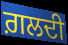
ਗ਼ਲਦੀ